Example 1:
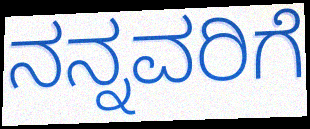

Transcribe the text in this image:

ನನ್ನವರಿಗೆ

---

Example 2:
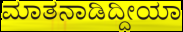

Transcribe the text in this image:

ಮಾತನಾಡಿದ್ದೀಯಾ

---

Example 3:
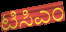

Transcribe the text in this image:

ಟಿಸಿಎಂ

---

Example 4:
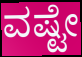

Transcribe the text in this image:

ವಷ್ಟೇ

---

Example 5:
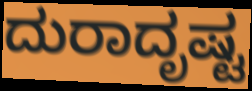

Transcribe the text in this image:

ದುರಾದೃಷ್ಟ